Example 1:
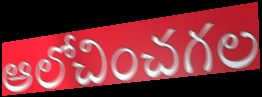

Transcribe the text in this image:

ఆలోచించగల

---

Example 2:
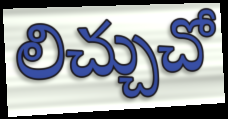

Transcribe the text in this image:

లిచ్చుచో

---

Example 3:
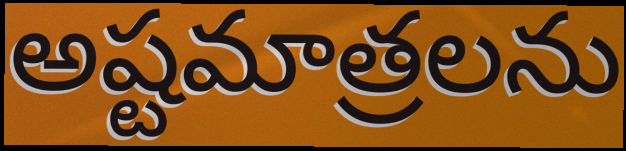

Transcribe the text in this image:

అష్టమాత్రలను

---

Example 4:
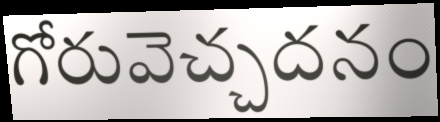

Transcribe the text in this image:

గోరువెచ్చదనం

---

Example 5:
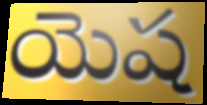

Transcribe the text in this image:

యెష